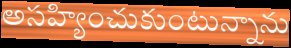
అసహ్యించుకుంటున్నాను